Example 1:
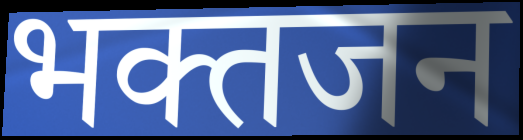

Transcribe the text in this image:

भक्तजन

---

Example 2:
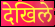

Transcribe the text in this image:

देखिले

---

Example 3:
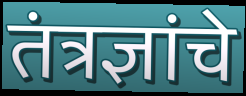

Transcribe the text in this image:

तंत्रज्ञांचे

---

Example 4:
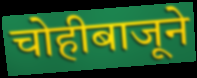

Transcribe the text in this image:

चोहीबाजूने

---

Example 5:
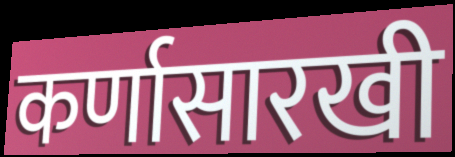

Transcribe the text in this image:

कर्णासारखी